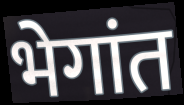
भेगांत